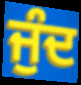
ਜੁੰਦ